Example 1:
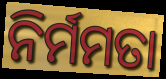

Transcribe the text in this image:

ନିର୍ମମତା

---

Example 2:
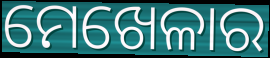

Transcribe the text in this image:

ମେଖେଳାର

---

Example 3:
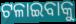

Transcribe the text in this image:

ଟଳାଇବାକୁ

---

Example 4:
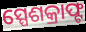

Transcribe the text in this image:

ସ୍ପେଶକ୍ରାଫ୍ଟ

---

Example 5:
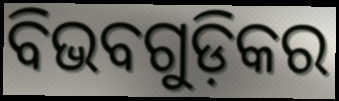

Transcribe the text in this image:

ବିଭବଗୁଡ଼ିକର